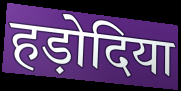
हड़ोदिया